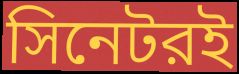
সিনেটরই